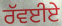
ਰੱਵਈਏ